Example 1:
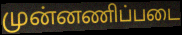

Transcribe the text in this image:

முன்னணிப்படை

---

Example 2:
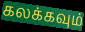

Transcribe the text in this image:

கலக்கவும்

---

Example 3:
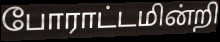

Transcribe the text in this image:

போராட்டமின்றி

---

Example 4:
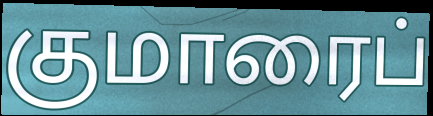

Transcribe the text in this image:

குமாரைப்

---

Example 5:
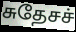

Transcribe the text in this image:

சுதேசச்